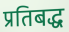
प्रतिबद्ध